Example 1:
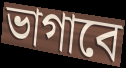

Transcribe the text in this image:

ভাগাবে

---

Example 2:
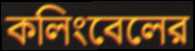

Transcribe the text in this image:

কলিংবেলের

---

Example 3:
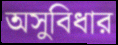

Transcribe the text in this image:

অসুবিধার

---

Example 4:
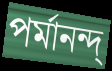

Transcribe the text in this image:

পর্মানন্দ্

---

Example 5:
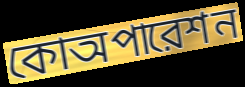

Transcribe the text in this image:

কোঅপারেশন